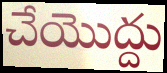
చేయొద్దు